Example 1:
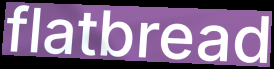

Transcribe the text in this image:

flatbread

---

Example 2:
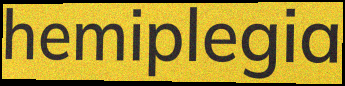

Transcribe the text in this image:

hemiplegia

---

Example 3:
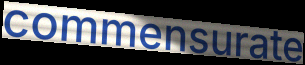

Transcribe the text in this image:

commensurate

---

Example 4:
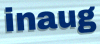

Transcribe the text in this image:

inaug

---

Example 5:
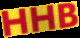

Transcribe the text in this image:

HHB